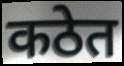
कठेत